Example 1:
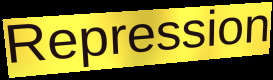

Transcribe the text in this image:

Repression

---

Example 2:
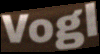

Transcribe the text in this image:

Vogl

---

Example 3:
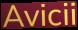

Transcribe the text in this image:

Avicii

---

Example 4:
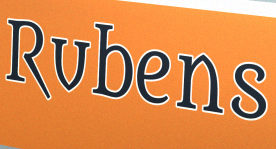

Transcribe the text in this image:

Rubens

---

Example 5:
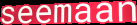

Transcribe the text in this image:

seemaan